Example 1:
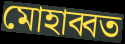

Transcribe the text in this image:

মোহাব্বত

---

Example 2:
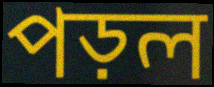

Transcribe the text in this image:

পড়্ল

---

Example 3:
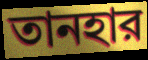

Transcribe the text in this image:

তানহার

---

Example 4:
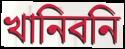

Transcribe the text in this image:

খানিবনি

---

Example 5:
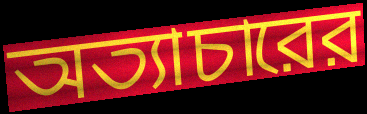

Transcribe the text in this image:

অত্যাচারের